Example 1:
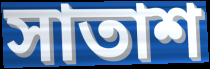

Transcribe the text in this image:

সাতাশ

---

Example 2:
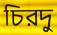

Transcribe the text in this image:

চিরদু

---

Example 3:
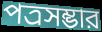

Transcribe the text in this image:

পত্রসম্ভার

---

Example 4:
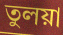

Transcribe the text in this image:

তুলয়া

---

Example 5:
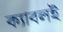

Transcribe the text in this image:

ক্যাবলই